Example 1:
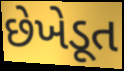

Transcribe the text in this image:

છેખેડૂત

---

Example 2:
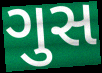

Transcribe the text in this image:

ગુસ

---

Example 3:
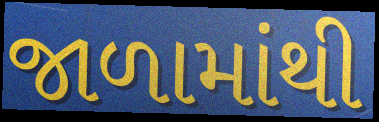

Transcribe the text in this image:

જાળામાંથી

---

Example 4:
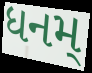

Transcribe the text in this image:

ધનમ્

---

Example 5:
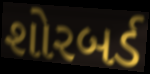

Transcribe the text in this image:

શોરબર્ડ